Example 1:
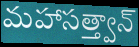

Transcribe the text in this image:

మహాసత్త్వాన్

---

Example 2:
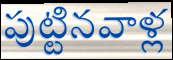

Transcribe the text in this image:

పుట్టినవాళ్ల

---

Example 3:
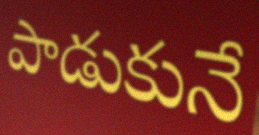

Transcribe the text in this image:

పాడుకునే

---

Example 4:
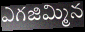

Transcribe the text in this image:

ఎగజిమ్మిన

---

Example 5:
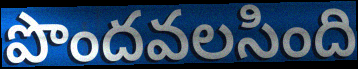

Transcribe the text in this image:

పొందవలసింది